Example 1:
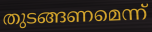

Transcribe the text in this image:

തുടങ്ങണമെന്ന്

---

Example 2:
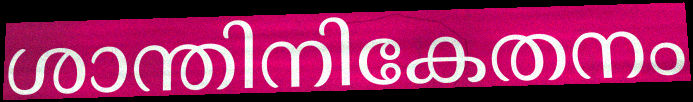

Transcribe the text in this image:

ശാന്തിനികേതനം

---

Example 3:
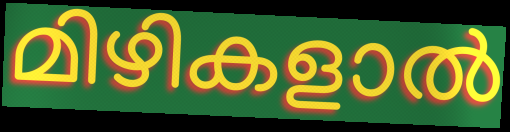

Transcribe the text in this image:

മിഴികളാൽ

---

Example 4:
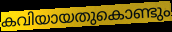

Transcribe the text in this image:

കവിയായതുകൊണ്ടും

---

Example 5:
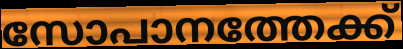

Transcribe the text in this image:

സോപാനത്തേക്ക്